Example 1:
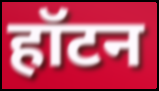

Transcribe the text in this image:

हॉटन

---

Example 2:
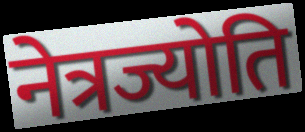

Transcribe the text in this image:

नेत्रज्योति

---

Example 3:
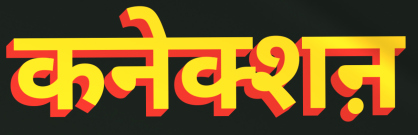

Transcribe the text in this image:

कनेक्शऩ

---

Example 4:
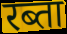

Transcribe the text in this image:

रब्ता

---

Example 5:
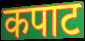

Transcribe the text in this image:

कपाट